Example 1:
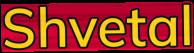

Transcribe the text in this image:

Shvetal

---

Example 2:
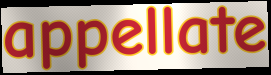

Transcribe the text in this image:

appellate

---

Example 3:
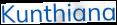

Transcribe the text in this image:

Kunthiana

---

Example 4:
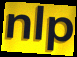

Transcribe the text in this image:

nlp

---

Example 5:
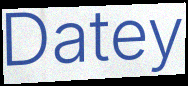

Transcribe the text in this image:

Datey